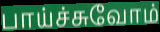
பாய்ச்சுவோம்